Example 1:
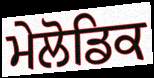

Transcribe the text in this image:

ਮੇਲੋਡਿਕ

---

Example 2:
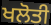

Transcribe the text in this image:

ਖਲੋਤੀ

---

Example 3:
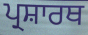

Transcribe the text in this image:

ਪ੍ਰਸ਼ਾਰਥ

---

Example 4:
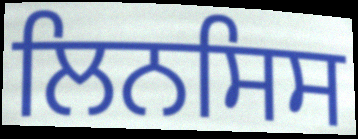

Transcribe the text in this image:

ਲਿਨਸਿਸ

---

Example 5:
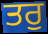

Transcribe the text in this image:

ਤਰੁ